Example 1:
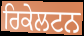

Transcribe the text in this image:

ਰਿਕੇਲਟਨ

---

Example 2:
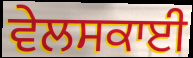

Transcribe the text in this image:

ਵੇਲਸਕਾਈ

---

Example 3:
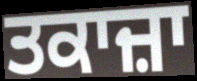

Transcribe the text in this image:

ਤਕਾਜ਼ਾ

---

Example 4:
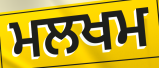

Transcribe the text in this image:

ਮਲਖਮ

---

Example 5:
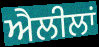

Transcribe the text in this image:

ਐਲੀਲਾਂ